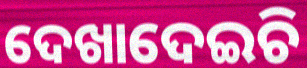
ଦେଖାଦେଇଚି